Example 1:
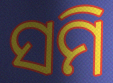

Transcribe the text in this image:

ସମି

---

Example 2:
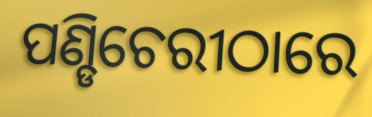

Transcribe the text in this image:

ପଣ୍ଡିଚେରୀଠାରେ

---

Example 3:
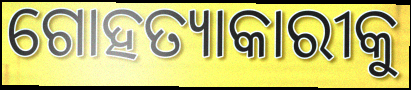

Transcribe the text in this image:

ଗୋହତ୍ୟାକାରୀକୁ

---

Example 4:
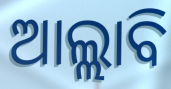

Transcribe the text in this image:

ଆଲ୍ଲାବି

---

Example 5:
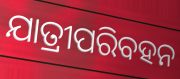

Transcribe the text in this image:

ଯାତ୍ରୀପରିବହନ